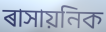
ৰাসায়নিক